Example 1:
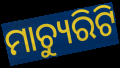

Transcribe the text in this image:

ମାଚ୍ୟୁରିଟି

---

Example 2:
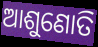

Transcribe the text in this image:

ଆଶୁଣୋତି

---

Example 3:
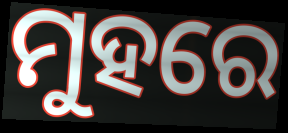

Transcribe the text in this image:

ମୁହରେ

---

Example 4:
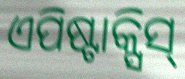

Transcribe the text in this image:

ଏପିଷ୍ଟାକ୍ସିସ୍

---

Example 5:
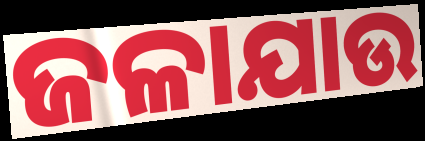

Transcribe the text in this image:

ଜଳାଯାଉ